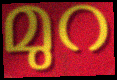
മുറ